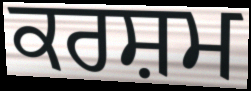
ਕਰਸ਼ਮ